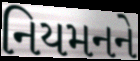
નિયમનને